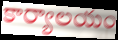
కార్యాలయం